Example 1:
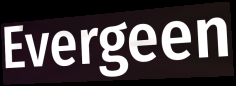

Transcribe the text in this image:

Evergeen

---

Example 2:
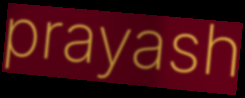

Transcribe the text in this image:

prayash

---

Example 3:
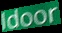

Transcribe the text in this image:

Idoor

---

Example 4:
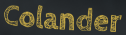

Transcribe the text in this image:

Colander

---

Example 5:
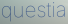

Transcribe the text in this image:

questia